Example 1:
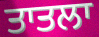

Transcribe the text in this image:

ਤਾਤਲਾ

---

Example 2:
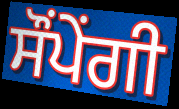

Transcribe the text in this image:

ਸੌਂਪੇਂਗੀ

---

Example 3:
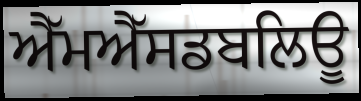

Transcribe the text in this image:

ਐੱਮਐੱਸਡਬਲਿਊ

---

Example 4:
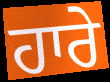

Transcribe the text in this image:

ਹਾਰੇ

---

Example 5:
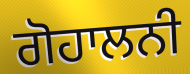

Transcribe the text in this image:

ਗੋਹਾਲਨੀ